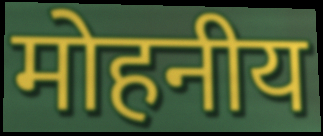
मोहनीय